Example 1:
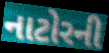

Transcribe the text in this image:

નાટોરની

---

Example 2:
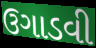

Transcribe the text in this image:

ઉગાડવી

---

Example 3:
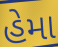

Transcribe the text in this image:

હેમા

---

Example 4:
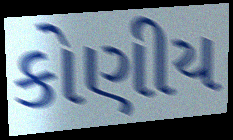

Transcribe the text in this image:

કોણીય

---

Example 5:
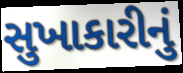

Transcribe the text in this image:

સુખાકારીનું